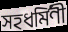
সহধৰ্মিণী